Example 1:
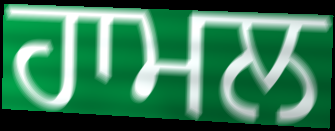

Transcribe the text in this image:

ਹਾਮਲ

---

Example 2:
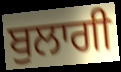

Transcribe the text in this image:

ਬੁਲਾਗੀ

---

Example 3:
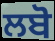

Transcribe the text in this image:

ਲਬੋ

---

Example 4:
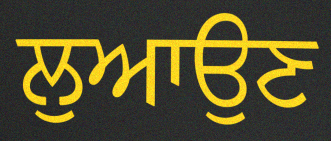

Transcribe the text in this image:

ਲੁਆਉਣ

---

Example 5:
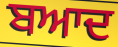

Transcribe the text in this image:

ਬਆਦ